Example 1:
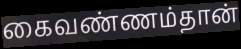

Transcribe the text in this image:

கைவண்ணம்தான்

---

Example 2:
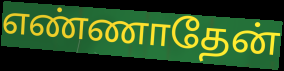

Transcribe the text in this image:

எண்ணாதேன்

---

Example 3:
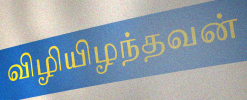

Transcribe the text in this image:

விழியிழந்தவன்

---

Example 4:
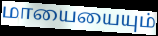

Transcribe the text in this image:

மாயையையும்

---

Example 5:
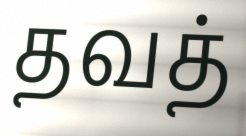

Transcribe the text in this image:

தவத்